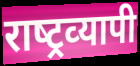
राष्‍ट्रव्‍यापी